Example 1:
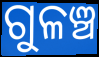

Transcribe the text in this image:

ଗୁଳଞ୍ଚ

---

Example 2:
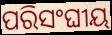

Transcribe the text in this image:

ପରିସଂଘୀୟ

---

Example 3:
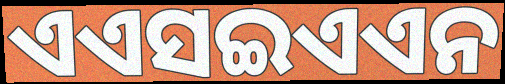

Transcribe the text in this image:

ଏଏସଇଏଏନ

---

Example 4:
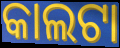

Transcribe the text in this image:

କାଲଟା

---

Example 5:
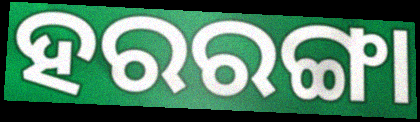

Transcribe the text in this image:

ହରରଙ୍ଗା